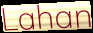
Lahan